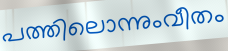
പത്തിലൊന്നുംവീതം